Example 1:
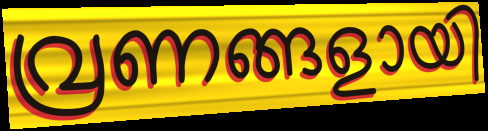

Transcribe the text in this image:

വ്രണങ്ങളായി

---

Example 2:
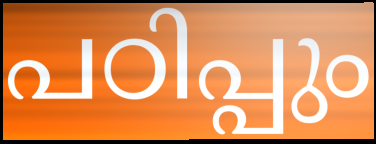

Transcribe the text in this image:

പഠിപ്പും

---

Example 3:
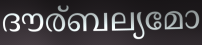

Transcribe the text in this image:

ദൗര്ബല്യമോ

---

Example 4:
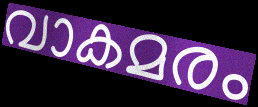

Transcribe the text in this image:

വാകമരം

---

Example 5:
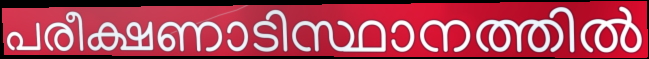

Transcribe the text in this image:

പരീക്ഷണാടിസ്ഥാനത്തിൽ